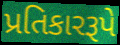
પ્રતિકારરૂપે